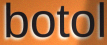
botol